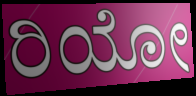
ರಿಯೋ